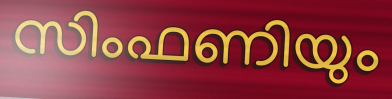
സിംഫണിയും